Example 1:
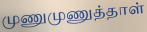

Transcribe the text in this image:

முணுமுணுத்தாள்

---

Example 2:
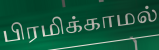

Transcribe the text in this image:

பிரமிக்காமல்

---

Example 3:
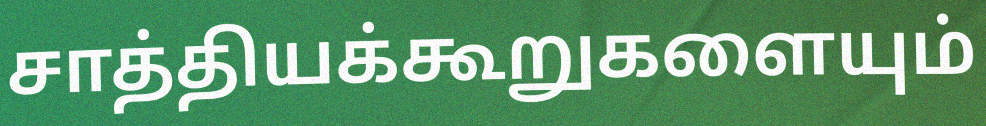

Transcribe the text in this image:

சாத்தியக்கூறுகளையும்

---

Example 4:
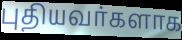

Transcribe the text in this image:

புதியவர்களாக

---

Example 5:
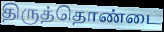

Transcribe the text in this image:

திருத்தொண்டை